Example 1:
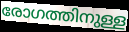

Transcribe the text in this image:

രോഗത്തിനുള്ള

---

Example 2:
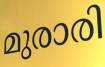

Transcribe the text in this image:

മുരാരി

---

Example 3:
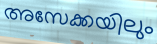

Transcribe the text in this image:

അസേക്കയിലും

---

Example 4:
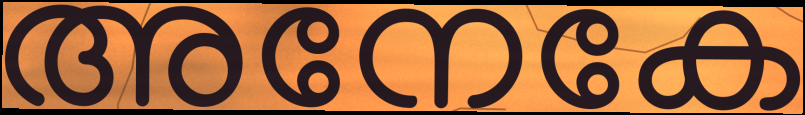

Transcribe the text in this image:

അനേകേ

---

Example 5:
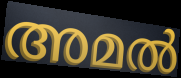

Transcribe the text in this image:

അമൽ